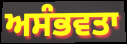
ਅਸੰਭਵਤਾ